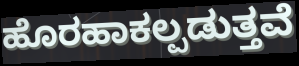
ಹೊರಹಾಕಲ್ಪಡುತ್ತವೆ